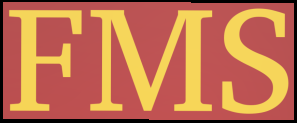
FMS